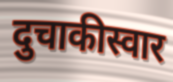
दुचाकीस्वार